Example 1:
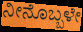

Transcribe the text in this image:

ನೀನೊಬ್ಬಳೇ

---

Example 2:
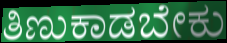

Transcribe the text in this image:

ತಿಣುಕಾಡಬೇಕು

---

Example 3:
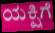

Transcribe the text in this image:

ಯಕ್ಷಿಗೆ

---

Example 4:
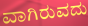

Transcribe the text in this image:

ವಾಗಿರುವದು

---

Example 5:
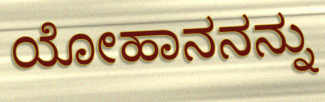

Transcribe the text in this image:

ಯೋಹಾನನನ್ನು